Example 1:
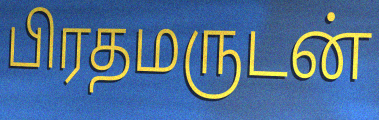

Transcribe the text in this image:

பிரதமருடன்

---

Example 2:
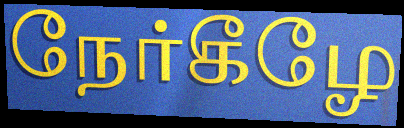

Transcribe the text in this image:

நேர்கீழே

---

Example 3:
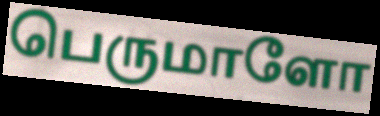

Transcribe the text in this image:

பெருமாளோ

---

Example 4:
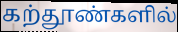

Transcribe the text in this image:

கற்தூண்களில்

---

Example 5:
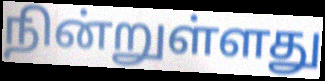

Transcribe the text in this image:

நின்றுள்ளது